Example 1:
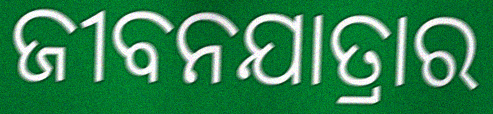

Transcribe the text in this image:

ଜୀବନଯାତ୍ରାର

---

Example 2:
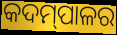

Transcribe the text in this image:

କଦମ୍‍ପାଳର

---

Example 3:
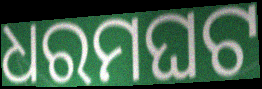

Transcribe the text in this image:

ଧରମଘଟ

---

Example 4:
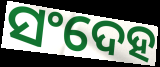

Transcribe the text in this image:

ସଂଦେହ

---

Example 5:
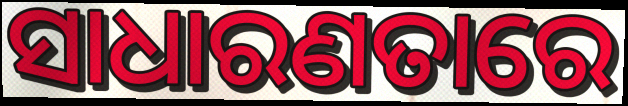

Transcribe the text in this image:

ସାଧାରଣତାରେ